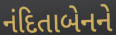
નંદિતાબેનને